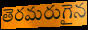
తెరమరుగైన